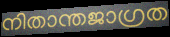
നിതാന്തജാഗ്രത